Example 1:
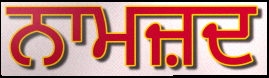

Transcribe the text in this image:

ਨਾਮਜ਼ਦ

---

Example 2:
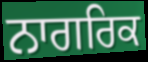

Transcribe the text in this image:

ਨਾਗਰਿਕ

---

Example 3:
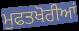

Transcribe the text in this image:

ਮੁਫਤਖੋਰੀਆਂ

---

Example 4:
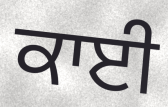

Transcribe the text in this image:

ਕਾਈ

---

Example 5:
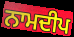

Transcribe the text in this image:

ਨਾਮਦੀਪ